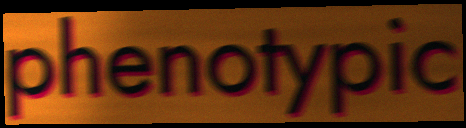
phenotypic